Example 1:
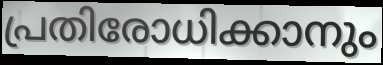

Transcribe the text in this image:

പ്രതിരോധിക്കാനും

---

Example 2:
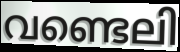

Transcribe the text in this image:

വണ്ടെലി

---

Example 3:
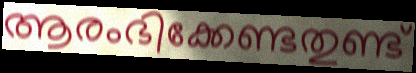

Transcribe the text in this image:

ആരംഭിക്കേണ്ടതുണ്ട്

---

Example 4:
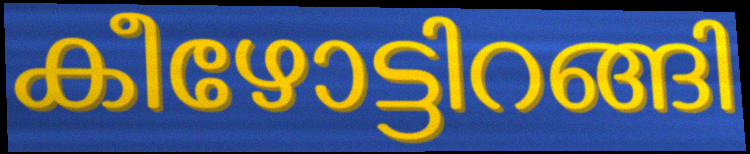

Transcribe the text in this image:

കീഴോട്ടിറങ്ങി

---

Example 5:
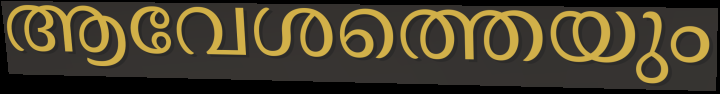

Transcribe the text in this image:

ആവേശത്തെയും